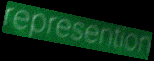
represention